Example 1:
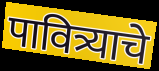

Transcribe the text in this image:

पावित्र्याचे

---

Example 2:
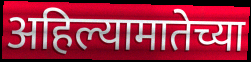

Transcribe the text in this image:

अहिल्यामातेच्या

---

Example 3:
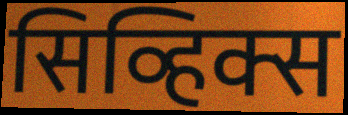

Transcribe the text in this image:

सिव्हिक्स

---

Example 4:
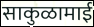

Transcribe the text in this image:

साकुळामाई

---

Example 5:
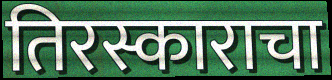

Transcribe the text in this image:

तिरस्काराचा